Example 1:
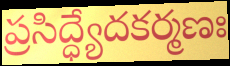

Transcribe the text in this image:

ప్రసిద్ధ్యేదకర్మణః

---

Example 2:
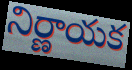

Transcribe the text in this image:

నిర్ణాయక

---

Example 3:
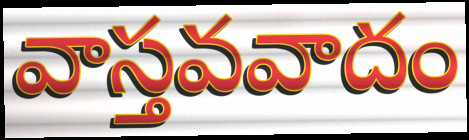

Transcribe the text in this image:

వాస్తవవాదం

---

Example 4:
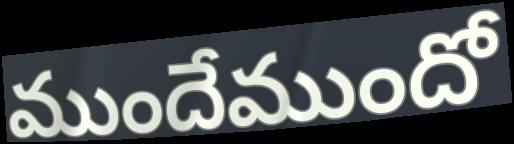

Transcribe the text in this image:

ముందేముందో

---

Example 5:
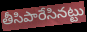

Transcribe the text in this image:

తీసిపారేసినట్టు